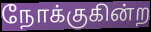
நோக்குகின்ற